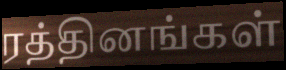
ரத்தினங்கள்